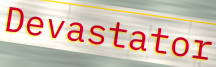
Devastator